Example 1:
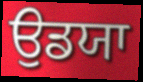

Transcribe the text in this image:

ਉਡਯਾ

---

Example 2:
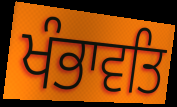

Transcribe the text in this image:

ਖੰਭਾਵਤਿ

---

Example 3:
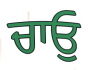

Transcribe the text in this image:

ਚਾਓੁ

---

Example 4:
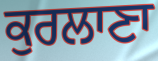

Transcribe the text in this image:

ਕੁਰਲਾਣਾ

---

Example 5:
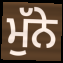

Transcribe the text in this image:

ਮੁੱਨੇ